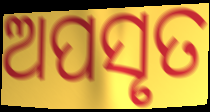
ଅପସୃତ